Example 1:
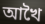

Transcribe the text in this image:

আখৈ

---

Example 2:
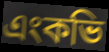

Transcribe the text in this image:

এংকভি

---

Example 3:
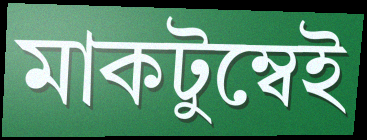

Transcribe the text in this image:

মাকটুম্বেই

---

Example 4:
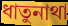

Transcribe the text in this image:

ধাতুনাথা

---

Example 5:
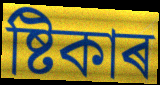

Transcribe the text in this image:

ষ্টিকাৰ